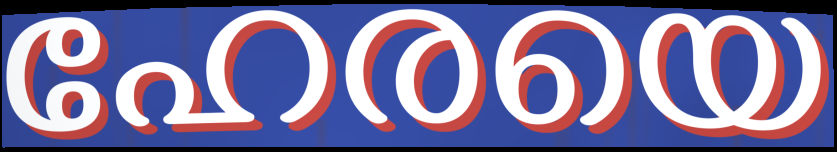
ഹേരയെ